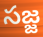
సజ్జ